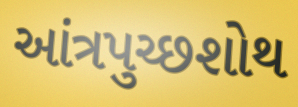
આંત્રપુચ્છશોથ